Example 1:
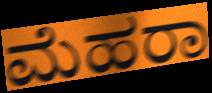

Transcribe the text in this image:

ಮೆಹರಾ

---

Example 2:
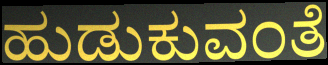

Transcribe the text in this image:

ಹುಡುಕುವಂತೆ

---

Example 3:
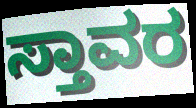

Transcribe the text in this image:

ಸ್ತಾವರ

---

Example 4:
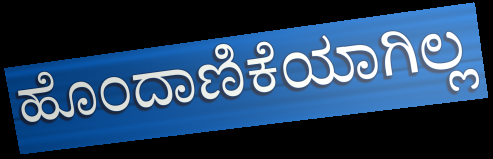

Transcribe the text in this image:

ಹೊಂದಾಣಿಕೆಯಾಗಿಲ್ಲ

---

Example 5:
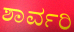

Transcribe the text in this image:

ಶಾರ್ವರಿ